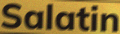
Salatin